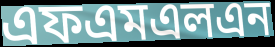
এফএমএলএন